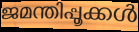
ജമന്തിപ്പൂക്കൾ